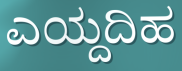
ಎಯ್ದದಿಹ